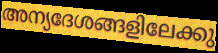
അന്യദേശങ്ങളിലേക്കു